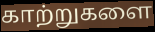
காற்றுகளை